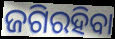
ଜଗିରହିବା